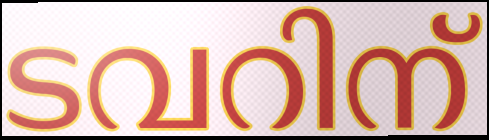
ടവറിന്